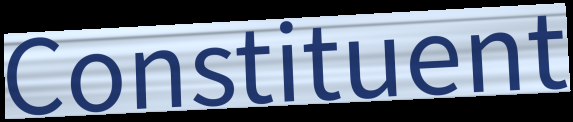
Constituent